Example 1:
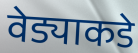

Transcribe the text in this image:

वेड्याकडे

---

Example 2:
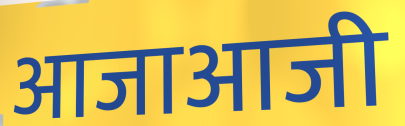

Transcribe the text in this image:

आजाआजी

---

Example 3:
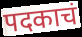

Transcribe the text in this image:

पदकाचं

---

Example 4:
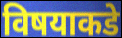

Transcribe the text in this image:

विषयाकडे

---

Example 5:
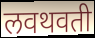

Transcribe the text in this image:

लवथवती